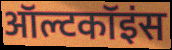
ऑल्टकॉइंस